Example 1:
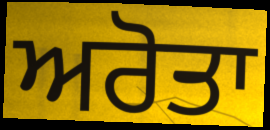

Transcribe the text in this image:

ਅਰੋਤਾ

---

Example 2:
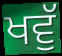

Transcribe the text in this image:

ਖਵੁੱ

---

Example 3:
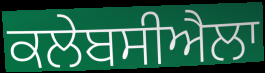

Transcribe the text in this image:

ਕਲੇਬਸੀਐਲਾ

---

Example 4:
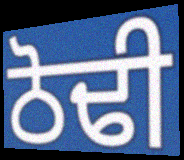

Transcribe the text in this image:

ਠੋਢੀ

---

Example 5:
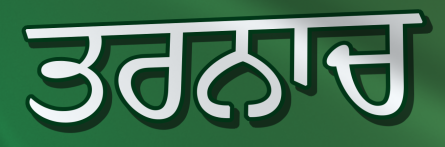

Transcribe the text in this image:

ਤਰਨਾਚ